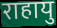
राहायु